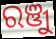
ରଞ୍ଜୁ